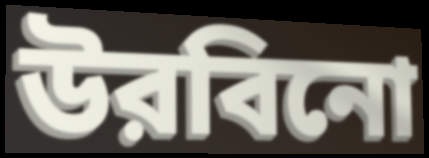
উরবিনো